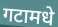
गटामधे